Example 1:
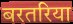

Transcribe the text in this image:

बरतरिया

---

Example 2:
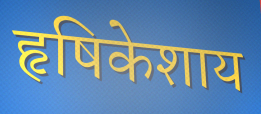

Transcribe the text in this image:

हृषिकेशाय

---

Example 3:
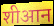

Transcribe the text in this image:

शीआन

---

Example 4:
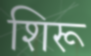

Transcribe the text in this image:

शिरू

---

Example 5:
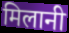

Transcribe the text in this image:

मिलानी